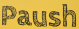
Paush